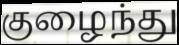
குழைந்து